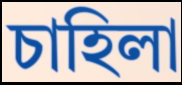
চাহিলা